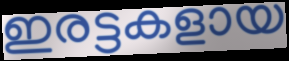
ഇരട്ടകളായ